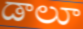
డాలూ